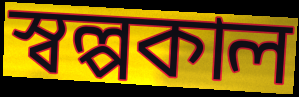
স্বল্পকাল